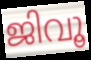
ജിവൂ